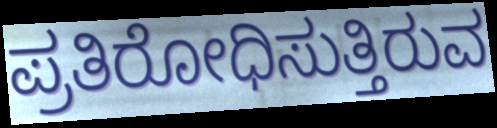
ಪ್ರತಿರೋಧಿಸುತ್ತಿರುವ